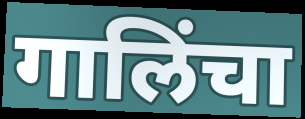
गालिंचा